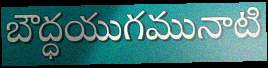
బౌద్ధయుగమునాటి